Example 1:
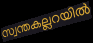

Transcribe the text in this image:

സ്വന്തകല്ലറയിൽ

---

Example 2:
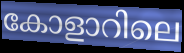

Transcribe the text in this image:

കോളാറിലെ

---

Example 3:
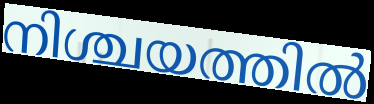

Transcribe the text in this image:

നിശ്ചയത്തിൽ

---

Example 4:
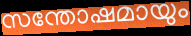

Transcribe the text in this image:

സന്തോഷമായും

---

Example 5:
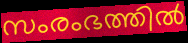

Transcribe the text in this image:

സംരംഭത്തിൽ